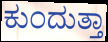
ಕುಂದುತ್ತಾ